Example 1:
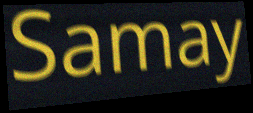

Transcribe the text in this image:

Samay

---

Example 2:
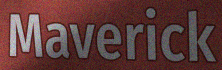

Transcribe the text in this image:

Maverick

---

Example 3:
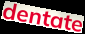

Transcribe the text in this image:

dentate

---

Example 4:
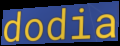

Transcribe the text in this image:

dodia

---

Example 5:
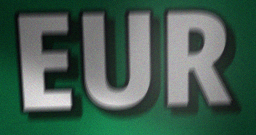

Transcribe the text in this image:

EUR